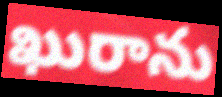
ఖురాను